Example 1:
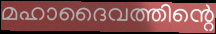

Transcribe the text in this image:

മഹാദൈവത്തിന്റെ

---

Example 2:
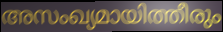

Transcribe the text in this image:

അസംഖ്യമായിത്തീരും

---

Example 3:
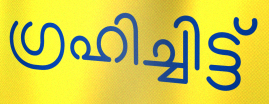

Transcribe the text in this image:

ഗ്രഹിച്ചിട്ട്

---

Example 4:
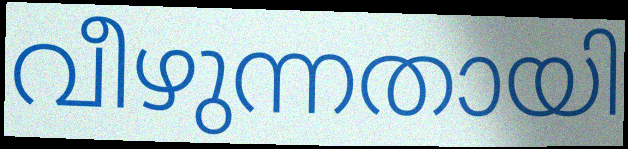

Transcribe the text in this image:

വീഴുന്നതായി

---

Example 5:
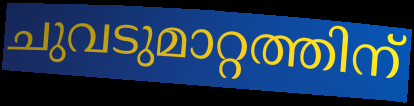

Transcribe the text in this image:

ചുവടുമാറ്റത്തിന്